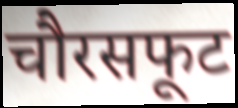
चौरसफूट